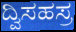
ದ್ವಿಸಹಸ್ರ